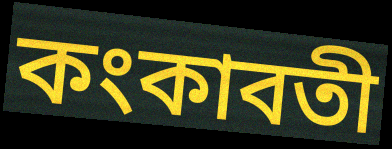
কংকাবতী